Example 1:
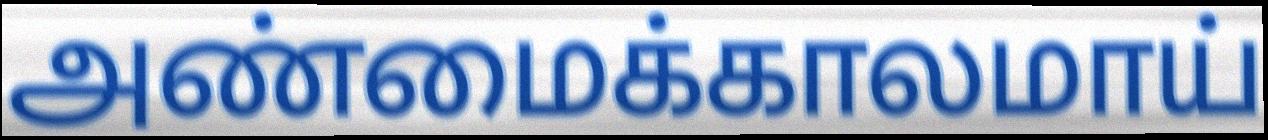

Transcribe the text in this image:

அண்மைக்காலமாய்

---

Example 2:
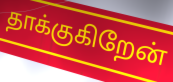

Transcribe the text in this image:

தாக்குகிறேன்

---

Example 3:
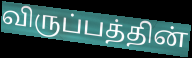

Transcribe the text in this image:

விருப்பத்தின்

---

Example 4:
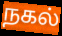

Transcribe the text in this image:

நகல்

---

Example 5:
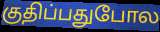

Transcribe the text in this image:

குதிப்பதுபோல